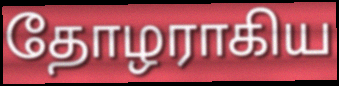
தோழராகிய